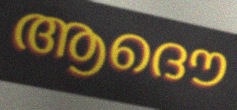
ആദൌ